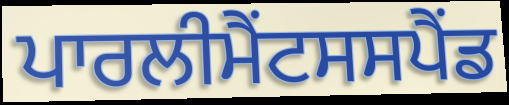
ਪਾਰਲੀਮੈਂਟਸਸਪੈਂਡ